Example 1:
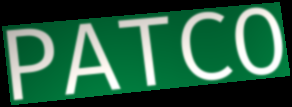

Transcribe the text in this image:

PATCO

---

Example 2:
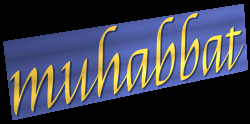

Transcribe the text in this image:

muhabbat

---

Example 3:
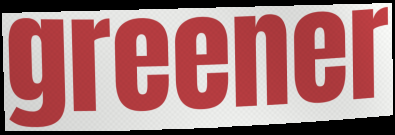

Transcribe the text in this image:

greener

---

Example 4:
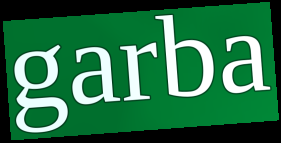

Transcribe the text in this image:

garba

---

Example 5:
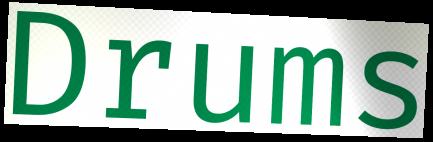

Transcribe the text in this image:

Drums